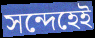
সন্দেহেই